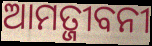
ଆମତ୍ଜୀବନୀ